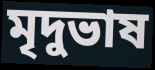
মৃদুভাষ